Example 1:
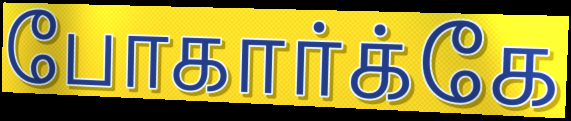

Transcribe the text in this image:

போகார்க்கே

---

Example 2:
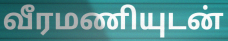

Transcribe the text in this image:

வீரமணியுடன்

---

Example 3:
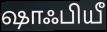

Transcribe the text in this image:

ஷாஃபியீ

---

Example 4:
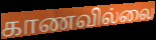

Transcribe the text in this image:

காணவில்லை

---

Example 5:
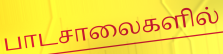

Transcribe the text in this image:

பாடசாலைகளில்